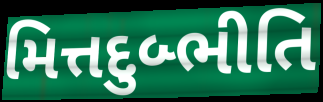
મિત્તદુબ્ભીતિ